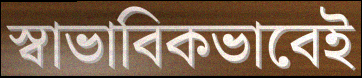
স্বাভাবিকভাবেই